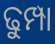
ଢୁମ୍ପା